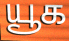
யூக